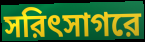
সরিৎসাগরে